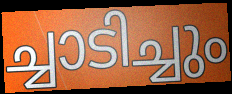
ച്ചാടിച്ചും